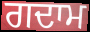
ਗਦਾਮ